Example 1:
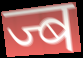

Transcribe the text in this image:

ज्ब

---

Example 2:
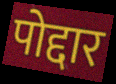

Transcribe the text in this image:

पोद्दार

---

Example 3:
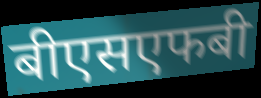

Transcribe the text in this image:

बीएसएफबी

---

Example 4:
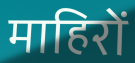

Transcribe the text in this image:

माहिरों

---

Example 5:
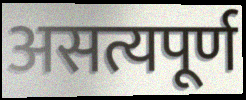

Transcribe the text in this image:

असत्यपूर्ण